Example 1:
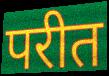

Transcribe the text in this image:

परीत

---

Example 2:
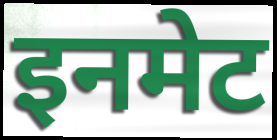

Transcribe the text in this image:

इनमेट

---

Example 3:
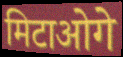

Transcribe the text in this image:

मिटाओगे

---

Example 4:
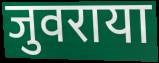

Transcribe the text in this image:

जुवराया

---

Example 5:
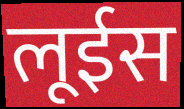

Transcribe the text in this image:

लूईस